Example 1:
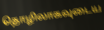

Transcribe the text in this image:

தொழிலாகவுடைய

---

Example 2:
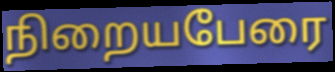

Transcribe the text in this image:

நிறையபேரை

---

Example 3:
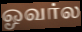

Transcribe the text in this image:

ஓவர்ல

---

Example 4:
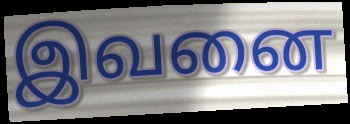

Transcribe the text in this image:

இவனை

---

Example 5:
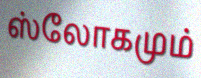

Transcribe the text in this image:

ஸ்லோகமும்